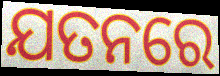
ଯତନରେ